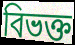
বিভক্ত